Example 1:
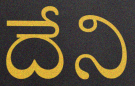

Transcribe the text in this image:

దేని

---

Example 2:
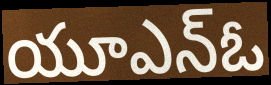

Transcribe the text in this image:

యూఎన్ఓ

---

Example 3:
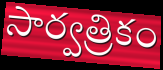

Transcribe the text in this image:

సార్వత్రికం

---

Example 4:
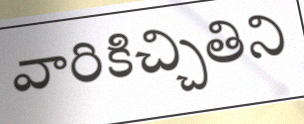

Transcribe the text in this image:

వారికిచ్చితిని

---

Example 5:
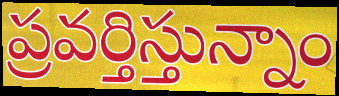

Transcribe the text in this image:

ప్రవర్తిస్తున్నాం